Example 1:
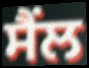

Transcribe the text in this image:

ਸੈਂਲ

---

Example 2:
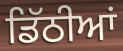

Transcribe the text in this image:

ਡਿੱਠੀਆਂ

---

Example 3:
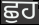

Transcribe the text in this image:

ਛੁਹ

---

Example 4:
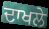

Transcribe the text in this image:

ਦਾਖਲੇ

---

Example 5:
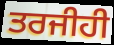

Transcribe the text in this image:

ਤਰਜੀਹੀ